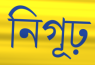
নিগূঢ়